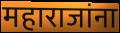
महाराजांना